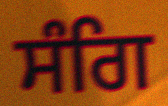
ਸੰਗਿ